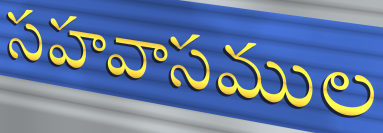
సహవాసముల